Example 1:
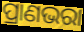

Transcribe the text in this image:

ପ୍ରାଣଭରା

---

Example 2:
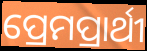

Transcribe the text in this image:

ପ୍ରେମପ୍ରାର୍ଥୀ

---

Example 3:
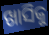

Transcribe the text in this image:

ଖାସିକୁ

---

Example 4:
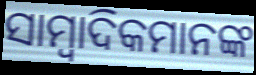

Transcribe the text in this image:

ସାମ୍ବାଦିକମାନଙ୍କ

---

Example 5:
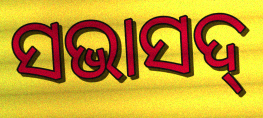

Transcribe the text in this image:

ସଭାସଦ୍